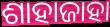
ଶାହାଜାହା